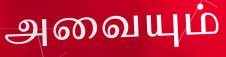
அவையும்